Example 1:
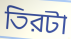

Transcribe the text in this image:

তিরটা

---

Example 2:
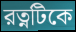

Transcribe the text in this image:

রত্নটিকে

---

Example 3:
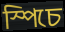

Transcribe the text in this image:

স্পিচে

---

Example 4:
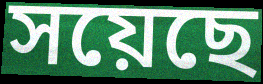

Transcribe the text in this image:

সয়েছে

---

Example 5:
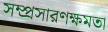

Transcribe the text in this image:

সম্প্রসারণক্ষমতা